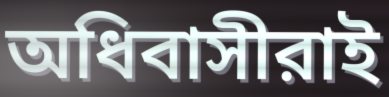
অধিবাসীরাই